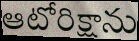
ఆటోరిక్షాను